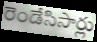
రెండేసిసార్లు